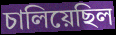
চালিয়েছিল